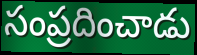
సంప్రదించాడు